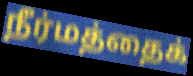
நீர்மத்தைக்